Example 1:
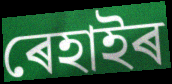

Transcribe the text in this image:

ৰেহাইৰ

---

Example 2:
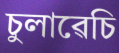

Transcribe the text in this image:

চুলাৱেচি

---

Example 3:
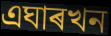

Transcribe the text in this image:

এঘাৰখন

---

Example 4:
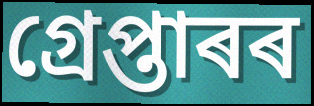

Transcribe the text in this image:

গ্ৰেপ্তাৰৰ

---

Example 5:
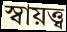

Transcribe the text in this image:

স্বায়ত্ত্ব